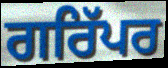
ਗਰਿੱਪਰ